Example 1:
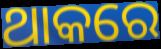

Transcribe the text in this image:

ଥାକରେ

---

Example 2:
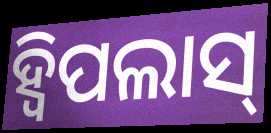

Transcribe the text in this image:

ହ୍ୱିପଲାସ୍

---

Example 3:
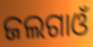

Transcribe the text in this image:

ଜଲଗାଓଁ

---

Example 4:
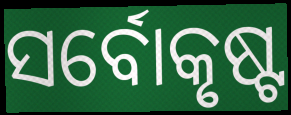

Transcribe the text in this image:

ସର୍ବୋକୃଷ୍ଟ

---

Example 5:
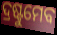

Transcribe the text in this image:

ଦ୍ରଷ୍ଟୁମେବ